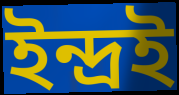
ইন্দ্ৰই